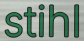
stihl